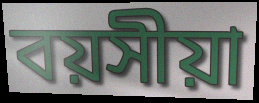
বয়সীয়া